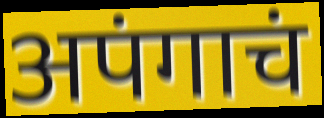
अपंगाचं